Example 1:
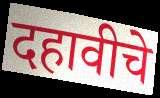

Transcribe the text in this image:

दहावीचे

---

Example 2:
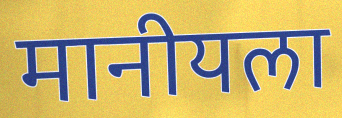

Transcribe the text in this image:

मानीयला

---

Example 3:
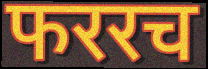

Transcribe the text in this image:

फररच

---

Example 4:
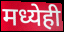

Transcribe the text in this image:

मध्येही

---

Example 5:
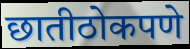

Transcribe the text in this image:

छातीठोकपणे